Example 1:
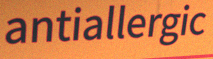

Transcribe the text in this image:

antiallergic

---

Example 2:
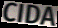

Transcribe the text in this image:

CIDA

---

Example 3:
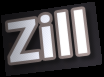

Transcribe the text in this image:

Zill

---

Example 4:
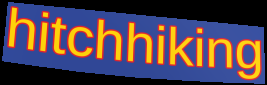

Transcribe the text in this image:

hitchhiking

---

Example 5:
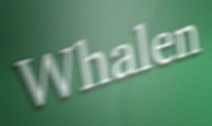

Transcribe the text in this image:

Whalen